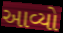
આવ્યો